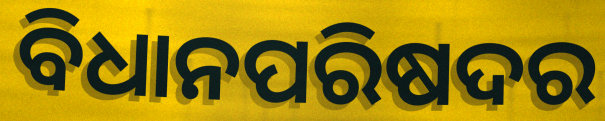
ବିଧାନପରିଷଦର